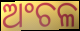
ଅଂଚଳ